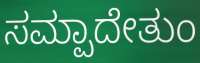
ಸಮ್ಪಾದೇತುಂ